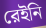
রেইনি